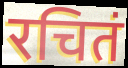
रचितं